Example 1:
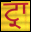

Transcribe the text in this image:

ਟ੍ਰਾ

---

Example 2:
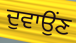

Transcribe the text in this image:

ਦੁਵਾਉਂਣ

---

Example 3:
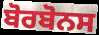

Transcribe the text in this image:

ਬੋਰਬੋਨਸ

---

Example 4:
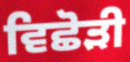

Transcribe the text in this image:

ਵਿਛੋੜੀ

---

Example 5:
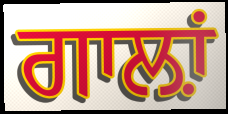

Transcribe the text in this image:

ਗਾਲ਼ਾਂ